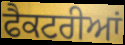
ਫੈਕਟਰੀਆਂ